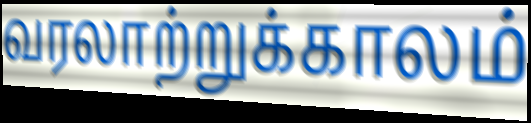
வரலாற்றுக்காலம்